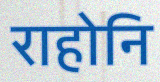
राहोनि